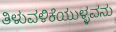
ತಿಳುವಳಿಕೆಯುಳ್ಳವನು